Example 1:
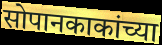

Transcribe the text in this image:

सोपानकाकांच्या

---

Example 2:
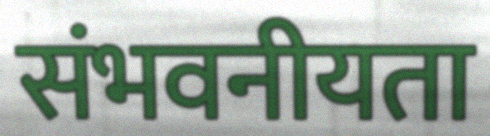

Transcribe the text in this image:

संभवनीयता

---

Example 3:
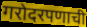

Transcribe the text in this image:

गरोदरपणाची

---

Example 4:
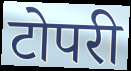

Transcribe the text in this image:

टोपरी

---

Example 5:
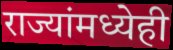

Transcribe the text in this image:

राज्यांमध्येही